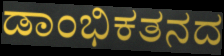
ಡಾಂಭಿಕತನದ